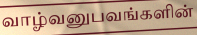
வாழ்வனுபவங்களின்